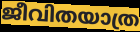
ജീവിതയാത്ര